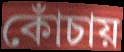
কোঁচায়